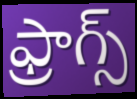
ఫ్రాగ్స్